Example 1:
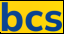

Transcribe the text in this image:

bcs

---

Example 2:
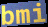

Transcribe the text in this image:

bmi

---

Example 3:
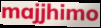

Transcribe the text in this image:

majjhimo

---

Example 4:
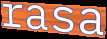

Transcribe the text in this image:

rasa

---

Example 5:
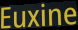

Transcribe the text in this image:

Euxine